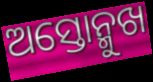
ଅସ୍ତୋନ୍ମୁଖ